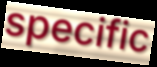
specific